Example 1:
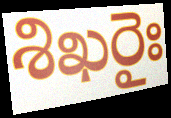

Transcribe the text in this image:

శిఖరైః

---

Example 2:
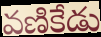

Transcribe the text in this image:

వణికేడు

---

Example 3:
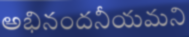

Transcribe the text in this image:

అభినందనీయమని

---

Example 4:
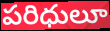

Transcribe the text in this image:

పరిధులూ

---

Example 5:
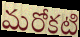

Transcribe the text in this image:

మరోకటి